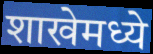
शाखेमध्ये